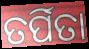
ତର୍ପିତା